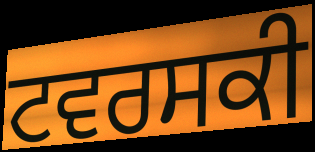
ਟਵਰਸਕੀ